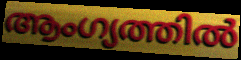
ആംഗ്യത്തിൽ